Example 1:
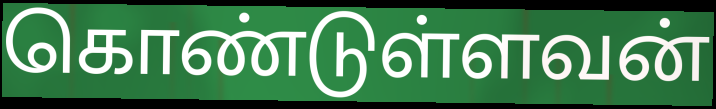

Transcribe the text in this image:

கொண்டுள்ளவன்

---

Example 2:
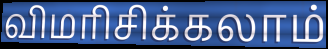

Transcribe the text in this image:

விமரிசிக்கலாம்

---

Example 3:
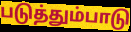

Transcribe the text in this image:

படுத்தும்பாடு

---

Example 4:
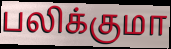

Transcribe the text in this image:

பலிக்குமா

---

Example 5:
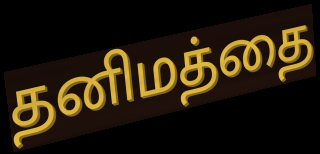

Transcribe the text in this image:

தனிமத்தை